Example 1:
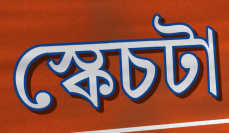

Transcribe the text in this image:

স্কেচটা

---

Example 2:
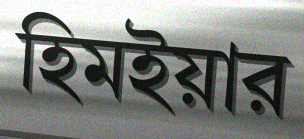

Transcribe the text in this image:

হিমইয়ার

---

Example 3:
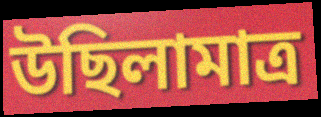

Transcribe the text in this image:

উছিলামাত্র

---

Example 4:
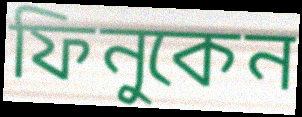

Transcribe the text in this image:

ফিনুকেন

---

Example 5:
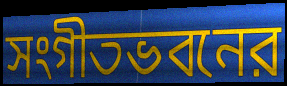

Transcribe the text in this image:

সংগীতভবনের